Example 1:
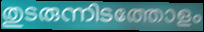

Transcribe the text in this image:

തുടരുന്നിടത്തോളം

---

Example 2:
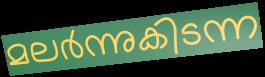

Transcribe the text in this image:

മലർന്നുകിടന്ന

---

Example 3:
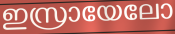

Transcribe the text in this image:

ഇസ്രായേലോ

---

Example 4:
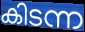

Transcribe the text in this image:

കിടന്ന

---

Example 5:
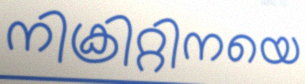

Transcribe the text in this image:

നിക്രിറ്റിനയെ